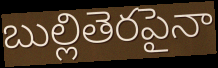
బుల్లితెరపైనా